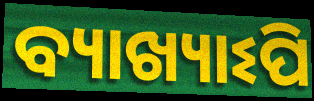
ବ୍ୟାଖ୍ୟାଽପି